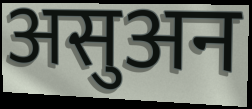
असुअन